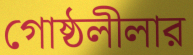
গোষ্ঠলীলার